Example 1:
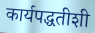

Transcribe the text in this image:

कार्यपद्धतीशी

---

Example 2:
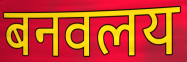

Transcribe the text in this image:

बनवलय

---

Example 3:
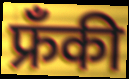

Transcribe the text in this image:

फ्रँकी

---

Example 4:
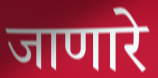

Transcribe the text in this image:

जाणारे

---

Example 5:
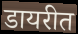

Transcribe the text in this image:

डायरीत